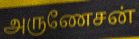
அருணேசன்